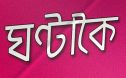
ঘণ্টাকৈ